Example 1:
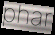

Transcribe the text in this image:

phar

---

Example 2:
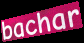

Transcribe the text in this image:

bachar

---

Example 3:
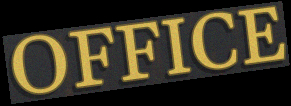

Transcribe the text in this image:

OFFICE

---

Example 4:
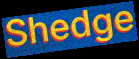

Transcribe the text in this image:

Shedge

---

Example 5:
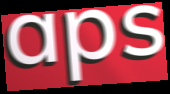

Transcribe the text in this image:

aps